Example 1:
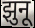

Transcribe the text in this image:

झुनू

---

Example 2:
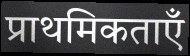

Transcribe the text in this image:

प्राथमिकताएँ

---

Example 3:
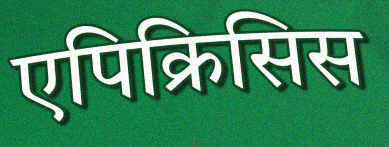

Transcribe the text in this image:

एपिक्रिसिस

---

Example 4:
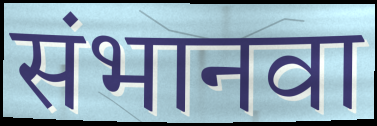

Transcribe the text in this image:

संभानवा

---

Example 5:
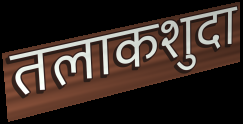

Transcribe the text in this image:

तलाकशुदा